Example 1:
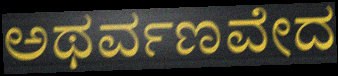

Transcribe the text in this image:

ಅಥರ್ವಣವೇದ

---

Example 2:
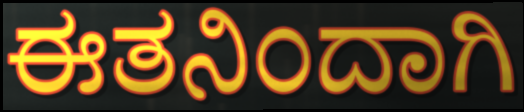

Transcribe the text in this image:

ಈತನಿಂದಾಗಿ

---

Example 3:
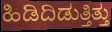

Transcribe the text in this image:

ಹಿಡಿದಿಡುತ್ತಿತ್ತು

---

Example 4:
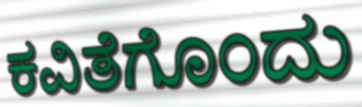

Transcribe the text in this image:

ಕವಿತೆಗೊಂದು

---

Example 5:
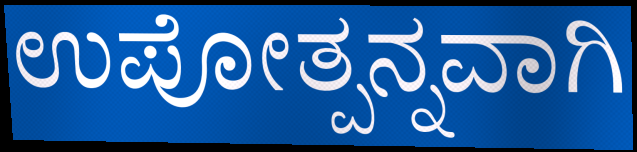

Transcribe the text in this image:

ಉಪೋತ್ಪನ್ನವಾಗಿ